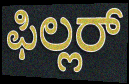
ಫಿಲ್ಲರ್